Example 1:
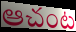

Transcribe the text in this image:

ఆచంట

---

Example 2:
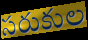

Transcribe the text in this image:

సరుకుల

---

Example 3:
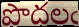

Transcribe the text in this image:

పొదలఁ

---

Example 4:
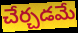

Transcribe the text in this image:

చేర్చడమే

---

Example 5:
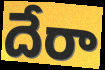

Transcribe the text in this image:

దేరా